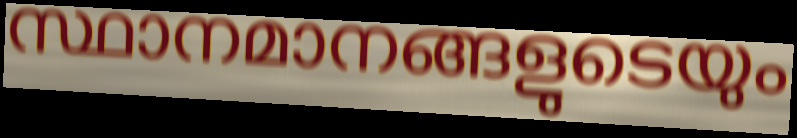
സ്ഥാനമാനങ്ങളുടെയും